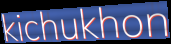
kichukhon